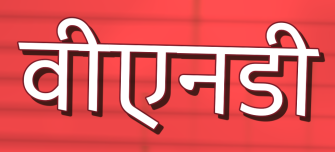
वीएनडी